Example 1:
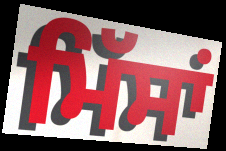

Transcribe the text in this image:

ਮਿੱਸਾਂ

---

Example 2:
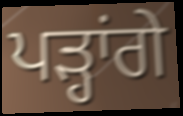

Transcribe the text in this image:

ਪੜ੍ਹਾਂਗੇ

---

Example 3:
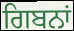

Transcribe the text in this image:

ਗਿਬਨਾਂ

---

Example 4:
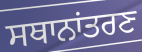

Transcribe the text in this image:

ਸਥਾਨਾਂਤਰਣ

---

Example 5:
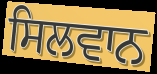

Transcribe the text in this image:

ਸਿਲਵਾਨ